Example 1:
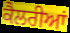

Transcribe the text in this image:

ਕੈਲਰੀਆਂ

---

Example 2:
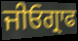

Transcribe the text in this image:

ਜੀਓਗ੍ਰਾਫ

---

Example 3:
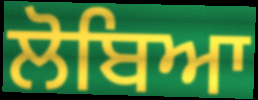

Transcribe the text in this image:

ਲੋਬਿਆ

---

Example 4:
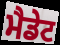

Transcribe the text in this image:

ਮੈਡੇਟ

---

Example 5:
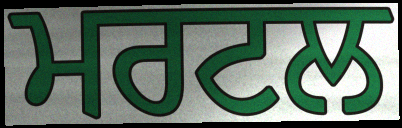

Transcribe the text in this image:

ਮਰਟਲ